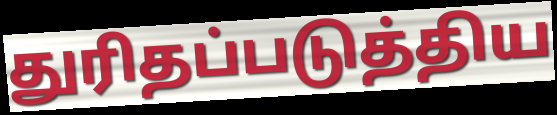
துரிதப்படுத்திய